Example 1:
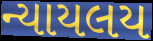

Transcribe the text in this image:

ન્યાયલય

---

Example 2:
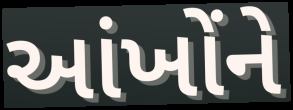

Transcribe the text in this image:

આંખોંને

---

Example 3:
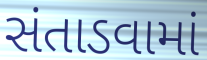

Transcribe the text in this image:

સંતાડવામાં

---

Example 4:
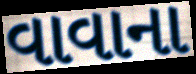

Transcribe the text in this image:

વાવાના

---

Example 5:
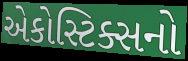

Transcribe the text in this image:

એકોસ્ટિક્સનો